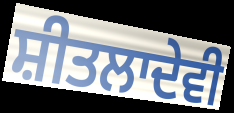
ਸ਼ੀਤਲਾਦੇਵੀ